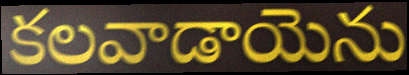
కలవాడాయెను